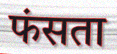
फंसता